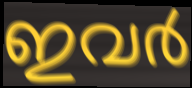
ഇവർ